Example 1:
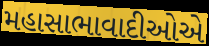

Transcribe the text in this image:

મહાસાભાવાદીઓએ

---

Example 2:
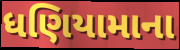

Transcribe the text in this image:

ધણિયામાના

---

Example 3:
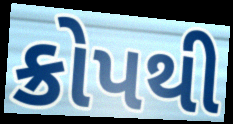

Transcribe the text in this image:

ક્રોપથી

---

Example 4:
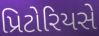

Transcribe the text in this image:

પ્રિટોરિયસે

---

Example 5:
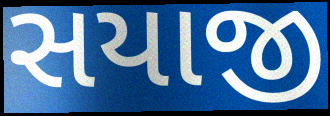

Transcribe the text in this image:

સયાજી